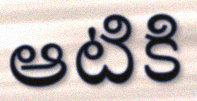
ఆటికి